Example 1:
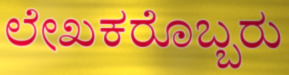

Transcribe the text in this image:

ಲೇಖಕರೊಬ್ಬರು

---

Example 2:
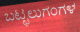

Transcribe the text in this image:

ಬಟ್ಟಲುಗಂಗಳ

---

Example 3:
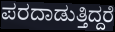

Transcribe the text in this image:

ಪರದಾಡುತ್ತಿದ್ದರೆ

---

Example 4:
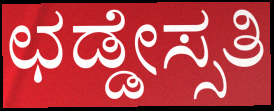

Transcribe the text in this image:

ಛಡ್ಡೇಸ್ಸತಿ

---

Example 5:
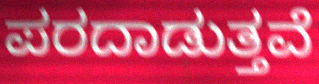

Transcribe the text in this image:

ಪರದಾಡುತ್ತವೆ